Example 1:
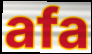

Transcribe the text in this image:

afa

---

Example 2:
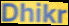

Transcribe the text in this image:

Dhikr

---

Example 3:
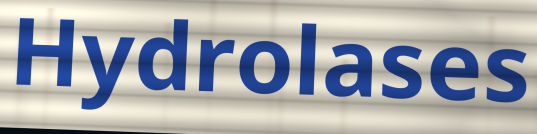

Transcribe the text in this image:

Hydrolases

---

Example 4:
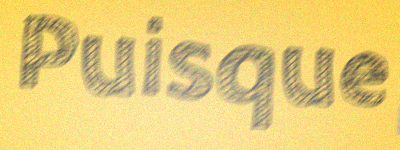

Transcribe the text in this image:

Puisque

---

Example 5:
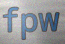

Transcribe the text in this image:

fpw